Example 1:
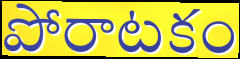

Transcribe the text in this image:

పోరాటకం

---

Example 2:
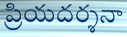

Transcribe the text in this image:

ప్రియదర్శనా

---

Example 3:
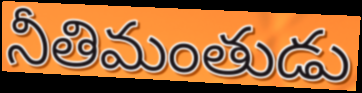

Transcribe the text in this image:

నీతిమంతుడు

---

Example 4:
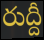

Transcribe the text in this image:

రుద్దీ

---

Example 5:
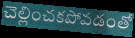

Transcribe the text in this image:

చెల్లించకపోవడంతో